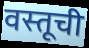
वस्तूची